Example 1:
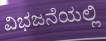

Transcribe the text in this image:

ವಿಭಜನೆಯಲ್ಲಿ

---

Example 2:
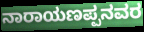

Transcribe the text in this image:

ನಾರಾಯಣಪ್ಪನವರ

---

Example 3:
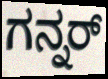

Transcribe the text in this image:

ಗನ್ನರ್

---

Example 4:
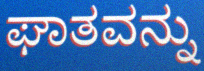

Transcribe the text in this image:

ಘಾತವನ್ನು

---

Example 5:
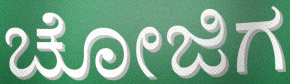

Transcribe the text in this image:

ಚೋಜಿಗ